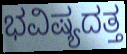
ಭವಿಷ್ಯದತ್ತ